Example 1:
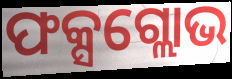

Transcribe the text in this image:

ଫକ୍ସଗ୍ଲୋଭ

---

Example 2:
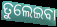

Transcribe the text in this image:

ତୁଲେଇବା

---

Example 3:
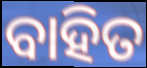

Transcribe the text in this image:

ବାହିତ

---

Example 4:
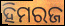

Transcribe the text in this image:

ହିମରଜ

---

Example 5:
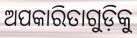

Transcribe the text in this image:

ଅପକାରିତାଗୁଡ଼ିକୁ